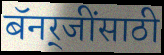
बॅनर्जींसाठी